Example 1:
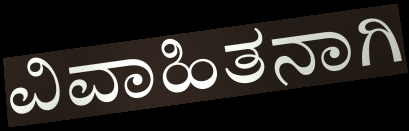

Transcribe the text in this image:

ವಿವಾಹಿತನಾಗಿ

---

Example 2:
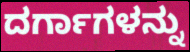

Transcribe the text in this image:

ದರ್ಗಾಗಳನ್ನು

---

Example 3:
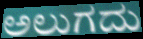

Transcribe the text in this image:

ಅಲುಗದು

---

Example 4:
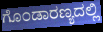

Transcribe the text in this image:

ಗೊಂಡಾರಣ್ಯದಲ್ಲಿ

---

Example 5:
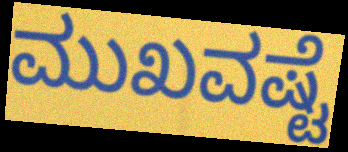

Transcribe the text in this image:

ಮುಖವಷ್ಟೆ